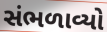
સંભળાવ્યો